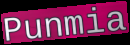
Punmia